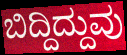
ಬಿದ್ದಿದ್ದುವು